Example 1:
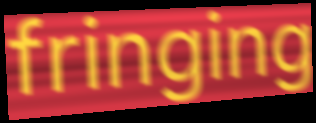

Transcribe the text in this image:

fringing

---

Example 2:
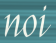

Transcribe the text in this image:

noi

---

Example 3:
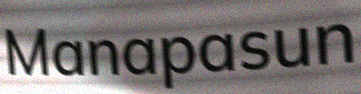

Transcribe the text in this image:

Manapasun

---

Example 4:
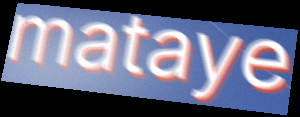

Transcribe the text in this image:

mataye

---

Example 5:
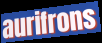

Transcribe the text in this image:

aurifrons